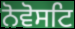
ਨੋਵੋਸਟਿ